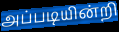
அப்படியின்றி